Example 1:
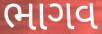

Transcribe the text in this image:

ભાગવ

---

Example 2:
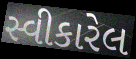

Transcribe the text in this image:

સ્વીકારેલ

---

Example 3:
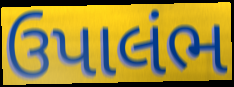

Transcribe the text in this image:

ઉપાલંભ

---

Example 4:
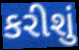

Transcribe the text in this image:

કરીશું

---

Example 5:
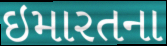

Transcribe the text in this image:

ઇમારતના